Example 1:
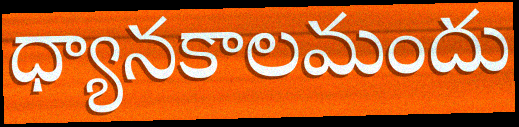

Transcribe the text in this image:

ధ్యానకాలమందు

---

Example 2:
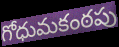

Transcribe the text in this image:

గోధుమకంఠపు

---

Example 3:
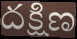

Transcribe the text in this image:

దక్షిణ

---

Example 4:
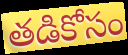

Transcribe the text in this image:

తడికోసం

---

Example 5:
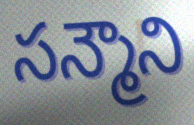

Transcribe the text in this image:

సన్మౌని